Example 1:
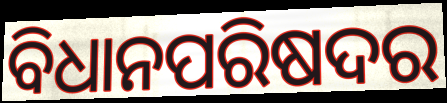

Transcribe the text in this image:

ବିଧାନପରିଷଦର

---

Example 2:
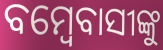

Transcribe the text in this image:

ବମ୍ବେବାସୀଙ୍କୁ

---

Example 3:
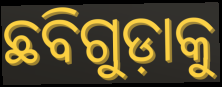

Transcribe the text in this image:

ଛବିଗୁଡ଼ାକୁ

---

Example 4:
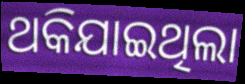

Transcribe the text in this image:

ଥକିଯାଇଥିଲା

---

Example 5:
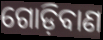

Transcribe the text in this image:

ଗୋଡ଼ିବାଣ